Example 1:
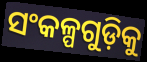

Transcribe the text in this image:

ସଂକଳ୍ପଗୁଡ଼ିକୁ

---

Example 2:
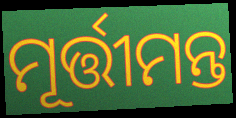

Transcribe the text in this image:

ମୂର୍ତ୍ତୀମନ୍ତ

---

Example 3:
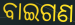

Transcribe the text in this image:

ବାଇଗଣ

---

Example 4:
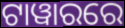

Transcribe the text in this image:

ଟାୱାରରେ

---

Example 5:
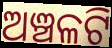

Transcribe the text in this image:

ଅଞ୍ଚଳଟି